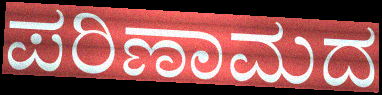
ಪರಿಣಾಮದ